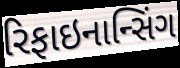
રિફાઇનાન્સિંગ